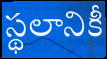
స్థలానికీ